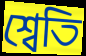
শ্বেতি